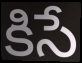
కిసే